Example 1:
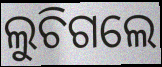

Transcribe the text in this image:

ଲୁଚିଗଲେ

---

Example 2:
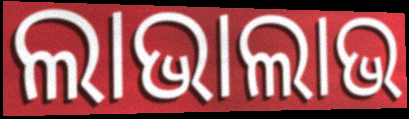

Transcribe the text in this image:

ଲାଭାଲାଭ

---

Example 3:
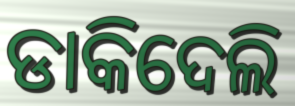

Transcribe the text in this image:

ଡାକିଦେଲି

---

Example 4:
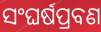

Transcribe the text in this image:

ସଂଘର୍ଷପ୍ରବଣ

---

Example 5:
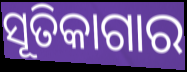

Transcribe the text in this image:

ସୂତିକାଗାର